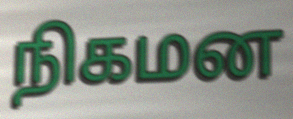
நிகமன